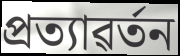
প্ৰত্যাৱৰ্তন